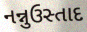
નન્નુઉસ્તાદ